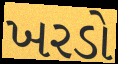
ખરડો